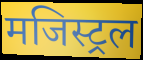
मजिस्ट्रल